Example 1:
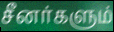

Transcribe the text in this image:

சீனர்களும்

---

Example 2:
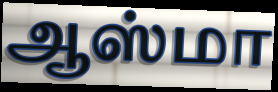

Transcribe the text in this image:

ஆஸ்மா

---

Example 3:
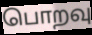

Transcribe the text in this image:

பொறவு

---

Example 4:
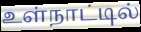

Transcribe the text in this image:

உள்நாட்டில்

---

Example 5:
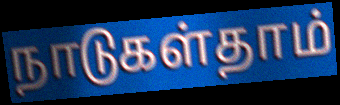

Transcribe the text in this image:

நாடுகள்தாம்